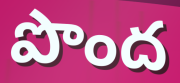
పొంద